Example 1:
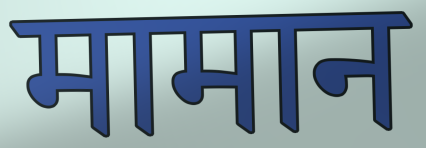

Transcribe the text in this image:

मामान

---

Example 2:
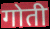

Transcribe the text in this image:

गोती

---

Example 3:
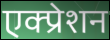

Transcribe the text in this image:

एक्प्रेशन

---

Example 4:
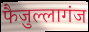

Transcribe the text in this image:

फैजुल्लागंज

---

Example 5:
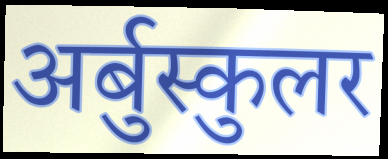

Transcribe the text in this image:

अर्बुस्कुलर